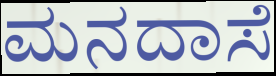
ಮನದಾಸೆ